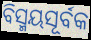
ବିସ୍ମୟସୂର୍ବକ